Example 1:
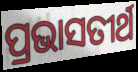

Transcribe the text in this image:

ପ୍ରଭାସତୀର୍ଥ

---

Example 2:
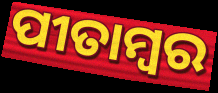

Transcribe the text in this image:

ପୀତାମ୍ବର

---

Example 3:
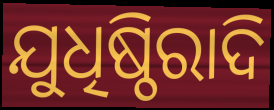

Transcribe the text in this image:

ଯୁଧିଷ୍ଠିରାଦି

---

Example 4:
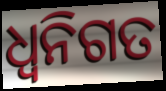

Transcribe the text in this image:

ଧ୍ଵନିଗତ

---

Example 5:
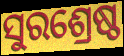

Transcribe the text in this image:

ସୁରଶ୍ରେଷ୍ଠ